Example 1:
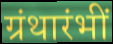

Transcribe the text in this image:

ग्रंथारंभीं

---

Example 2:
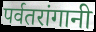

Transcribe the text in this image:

पर्वतरांगानी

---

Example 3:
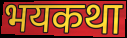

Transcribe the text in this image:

भयकथा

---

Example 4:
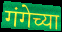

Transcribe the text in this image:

गंगेच्या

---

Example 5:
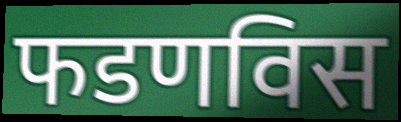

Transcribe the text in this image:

फडणविस